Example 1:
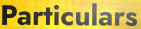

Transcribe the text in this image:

Particulars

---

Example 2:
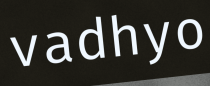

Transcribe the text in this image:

vadhyo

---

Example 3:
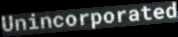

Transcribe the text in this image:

Unincorporated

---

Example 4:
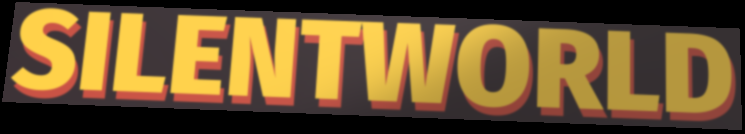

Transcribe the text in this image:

SILENTWORLD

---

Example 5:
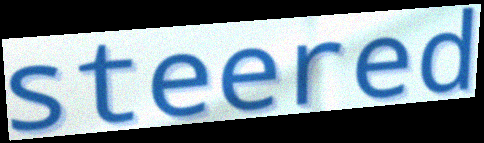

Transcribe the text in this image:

steered